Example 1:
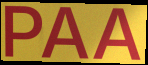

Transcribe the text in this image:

PAA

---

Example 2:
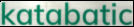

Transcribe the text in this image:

katabatic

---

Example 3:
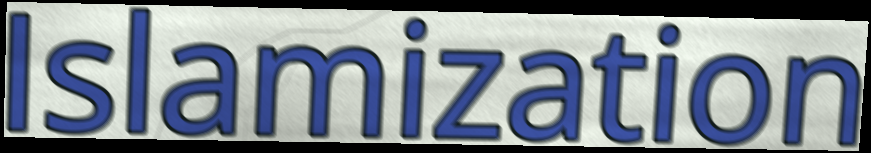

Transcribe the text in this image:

Islamization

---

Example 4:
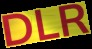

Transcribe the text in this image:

DLR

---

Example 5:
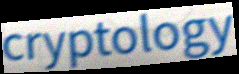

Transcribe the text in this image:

cryptology